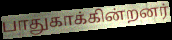
பாதுகாக்கின்றனர்